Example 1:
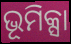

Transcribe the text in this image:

ଭୂମିକ୍ସା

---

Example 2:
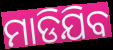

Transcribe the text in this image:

ମାଡିଯିବ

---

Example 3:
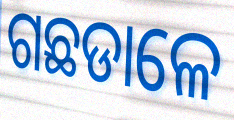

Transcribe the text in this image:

ଗଛଡାଳେ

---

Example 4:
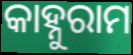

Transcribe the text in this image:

କାହ୍ନୁରାମ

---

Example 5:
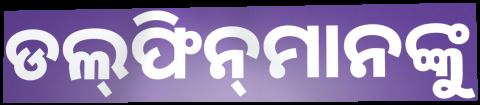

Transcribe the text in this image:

ଡଲ୍‍ଫିନ୍‍ମାନଙ୍କୁ